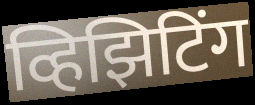
व्हिझिटिंग